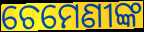
ଚେମେଣୀଙ୍କ